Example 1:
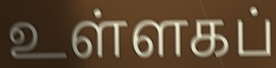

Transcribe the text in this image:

உள்ளகப்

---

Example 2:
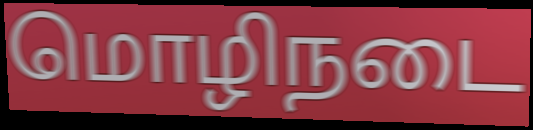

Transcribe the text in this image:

மொழிநடை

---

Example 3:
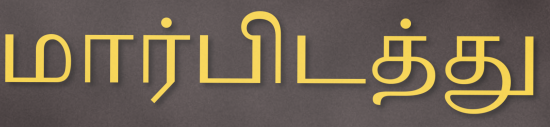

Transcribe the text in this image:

மார்பிடத்து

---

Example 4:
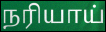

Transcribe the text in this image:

நரியாய்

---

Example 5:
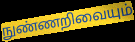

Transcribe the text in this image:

நுண்ணறிவையும்